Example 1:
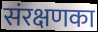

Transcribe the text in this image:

संरक्षणका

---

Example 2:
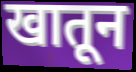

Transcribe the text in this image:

खातून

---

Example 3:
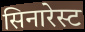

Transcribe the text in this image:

सिनारेस्ट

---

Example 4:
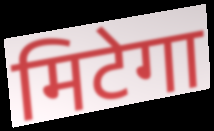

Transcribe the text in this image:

मिटेगा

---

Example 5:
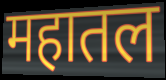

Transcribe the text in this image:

महातल